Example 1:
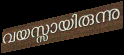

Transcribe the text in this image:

വയസ്സായിരുന്നു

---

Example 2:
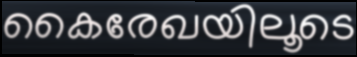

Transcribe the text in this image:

കൈരേഖയിലൂടെ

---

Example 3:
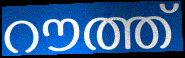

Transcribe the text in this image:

റൗത്ത്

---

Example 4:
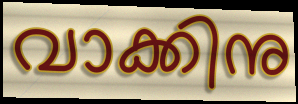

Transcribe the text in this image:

വാക്കിനു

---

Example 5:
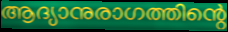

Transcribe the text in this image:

ആദ്യാനുരാഗത്തിന്റെ